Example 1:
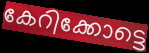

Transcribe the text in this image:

കേറിക്കോട്ടെ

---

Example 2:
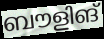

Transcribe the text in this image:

ബൗളിങ്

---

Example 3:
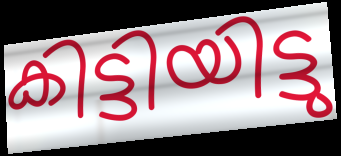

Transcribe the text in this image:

കിട്ടിയിട്ടു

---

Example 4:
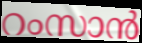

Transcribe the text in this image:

റംസാൻ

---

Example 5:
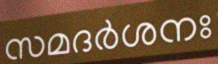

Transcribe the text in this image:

സമദർശനഃ